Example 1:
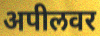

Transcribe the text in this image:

अपीलवर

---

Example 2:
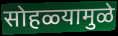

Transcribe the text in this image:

सोहळ्यामुळे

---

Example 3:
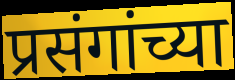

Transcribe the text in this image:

प्रसंगांच्या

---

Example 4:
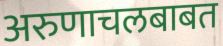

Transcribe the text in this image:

अरुणाचलबाबत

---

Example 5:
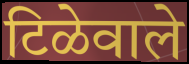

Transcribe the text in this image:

टिळेवाले